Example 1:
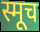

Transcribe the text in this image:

स्मूच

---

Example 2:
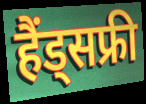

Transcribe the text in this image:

हैंड्सफ्री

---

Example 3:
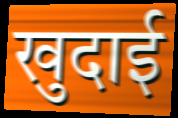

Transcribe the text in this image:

खुदाई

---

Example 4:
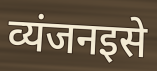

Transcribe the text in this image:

व्यंजनइसे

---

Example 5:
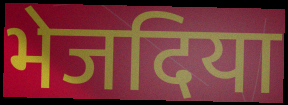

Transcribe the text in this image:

भेजदिया